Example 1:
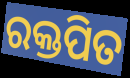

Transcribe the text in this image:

ରକ୍ତପିତ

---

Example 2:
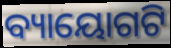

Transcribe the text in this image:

ବ୍ୟାୟୋଗଟି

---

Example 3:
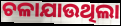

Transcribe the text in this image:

ଚଳାଯାଉଥିଲା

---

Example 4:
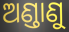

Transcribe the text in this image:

ଅଣ୍ଡାଣୁ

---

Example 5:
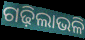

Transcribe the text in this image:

ଗଢ଼ିଲାଭଳି